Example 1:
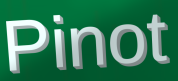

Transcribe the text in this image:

Pinot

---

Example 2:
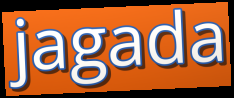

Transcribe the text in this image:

jagada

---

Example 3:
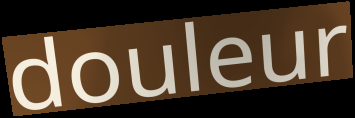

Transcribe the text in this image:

douleur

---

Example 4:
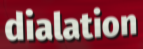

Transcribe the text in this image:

dialation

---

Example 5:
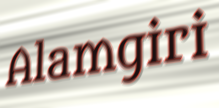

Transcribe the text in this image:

Alamgiri